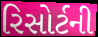
રિસોર્ટની